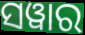
ସୱାର